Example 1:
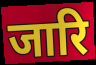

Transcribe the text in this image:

जारि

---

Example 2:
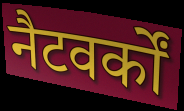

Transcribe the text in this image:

नैटवर्कों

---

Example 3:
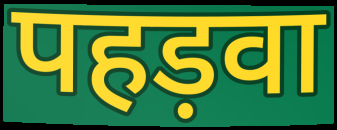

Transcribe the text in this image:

पहड़वा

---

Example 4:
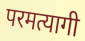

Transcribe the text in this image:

परमत्यागी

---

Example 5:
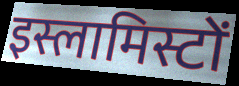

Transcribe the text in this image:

इस्लामिस्टों